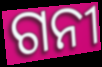
ଗନୀ